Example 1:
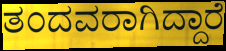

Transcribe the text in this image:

ತಂದವರಾಗಿದ್ದಾರೆ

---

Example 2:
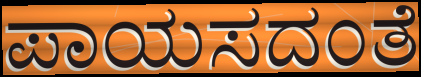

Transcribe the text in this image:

ಪಾಯಸದಂತೆ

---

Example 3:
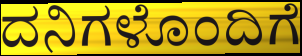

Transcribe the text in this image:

ದನಿಗಳೊಂದಿಗೆ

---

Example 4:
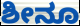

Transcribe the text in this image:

ಶೀನೂ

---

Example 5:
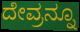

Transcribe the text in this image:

ದೇವ್ರನ್ನೂ